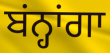
ਬਂਨ੍ਹਾਂਗਾ